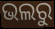
ଭଲରୁ